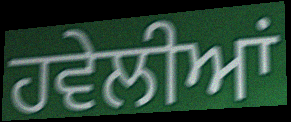
ਹਵੇਲੀਆਂ